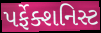
પર્ફેક્શનિસ્ટ